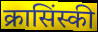
क्रासिंस्की